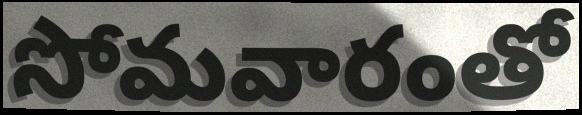
సోమవారంతో